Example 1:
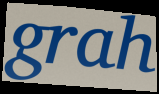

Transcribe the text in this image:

grah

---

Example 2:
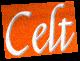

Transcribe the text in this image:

Celt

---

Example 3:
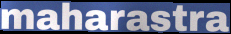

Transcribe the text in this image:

maharastra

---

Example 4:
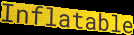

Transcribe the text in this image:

Inflatable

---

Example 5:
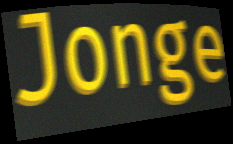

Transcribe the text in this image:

Jonge